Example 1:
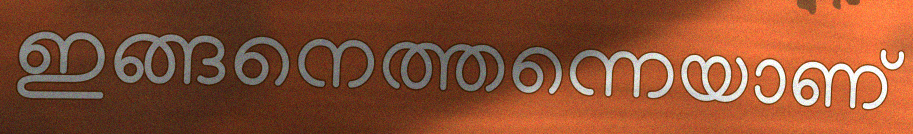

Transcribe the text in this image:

ഇങ്ങനെത്തന്നെയാണ്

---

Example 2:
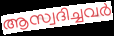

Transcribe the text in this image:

ആസ്വദിച്ചവർ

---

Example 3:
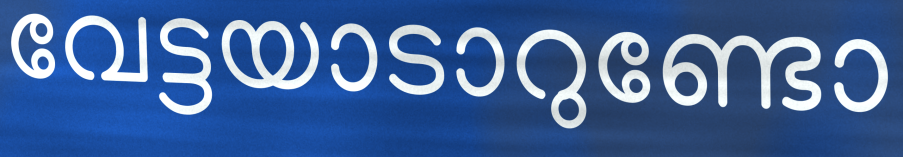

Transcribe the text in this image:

വേട്ടയാടാറുണ്ടോ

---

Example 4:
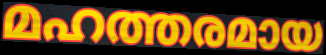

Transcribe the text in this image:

മഹത്തരമായ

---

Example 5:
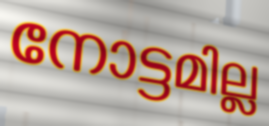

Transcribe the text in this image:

നോട്ടമില്ല